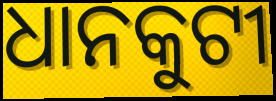
ଧାନକୁଟୀ